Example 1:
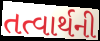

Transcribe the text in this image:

તત્વાર્થની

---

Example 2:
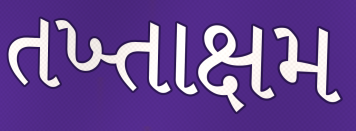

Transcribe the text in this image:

તખ્તાક્ષમ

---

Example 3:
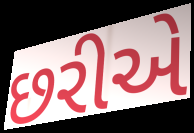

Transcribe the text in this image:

છરીએ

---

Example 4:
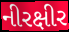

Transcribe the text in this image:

નીરક્ષીર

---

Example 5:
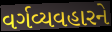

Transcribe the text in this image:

વર્ગવ્યવહારને